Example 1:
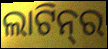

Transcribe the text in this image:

ଲାଟିନ୍‌ର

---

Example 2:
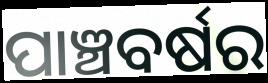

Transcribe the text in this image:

ପାଞ୍ଚବର୍ଷର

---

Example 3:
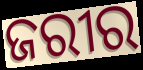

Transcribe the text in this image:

ଜରୀର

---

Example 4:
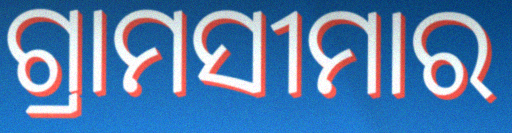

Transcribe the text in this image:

ଗ୍ରାମସୀମାର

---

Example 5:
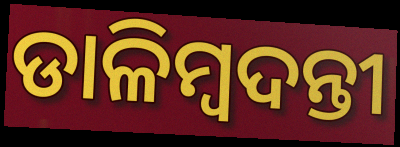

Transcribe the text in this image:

ଡାଳିମ୍ବଦନ୍ତୀ